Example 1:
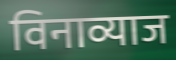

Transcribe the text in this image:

विनाव्याज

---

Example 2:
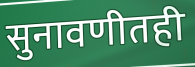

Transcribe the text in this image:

सुनावणीतही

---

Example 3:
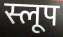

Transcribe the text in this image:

स्लूप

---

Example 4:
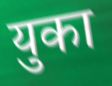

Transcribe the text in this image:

युका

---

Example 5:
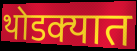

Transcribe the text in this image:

थोडक्यात